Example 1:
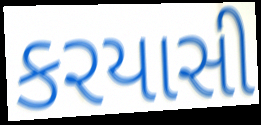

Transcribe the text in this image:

કરયાસી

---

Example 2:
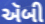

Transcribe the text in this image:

ઍબી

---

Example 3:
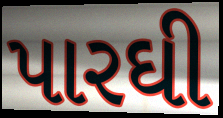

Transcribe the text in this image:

પારઘી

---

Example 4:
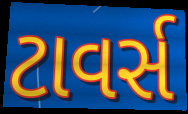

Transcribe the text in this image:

ટાવર્સ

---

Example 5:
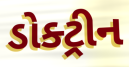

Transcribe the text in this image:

ડોક્ટ્રીન